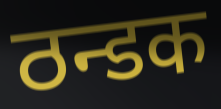
ठन्डक